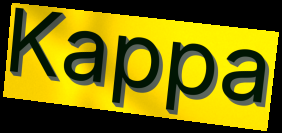
Kappa